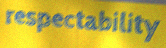
respectability